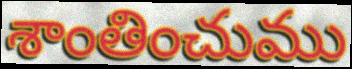
శాంతించుము